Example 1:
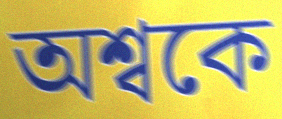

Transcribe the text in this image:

অশ্বকে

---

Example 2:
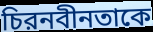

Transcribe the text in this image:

চিরনবীনতাকে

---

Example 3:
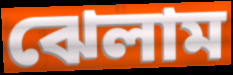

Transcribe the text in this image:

ঝেলাম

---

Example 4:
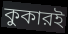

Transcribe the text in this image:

কুকারই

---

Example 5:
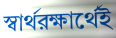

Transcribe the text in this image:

স্বার্থরক্ষার্থেই